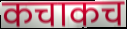
कचाकच